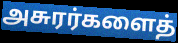
அசுரர்களைத்